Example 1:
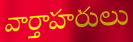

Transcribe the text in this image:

వార్తాహరులు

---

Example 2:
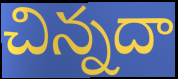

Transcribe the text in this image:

చిన్నదా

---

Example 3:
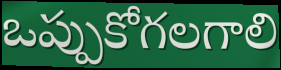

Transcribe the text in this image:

ఒప్పుకోగలగాలి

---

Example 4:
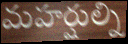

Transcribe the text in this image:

మహర్షుల్ని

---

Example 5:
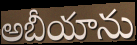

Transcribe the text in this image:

అబీయాను